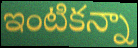
ఇంటికన్నా